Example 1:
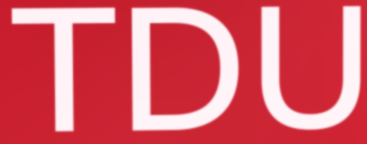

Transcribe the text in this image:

TDU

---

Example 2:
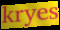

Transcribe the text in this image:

kryes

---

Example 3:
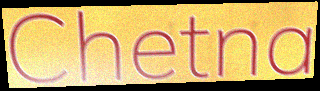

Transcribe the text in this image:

Chetna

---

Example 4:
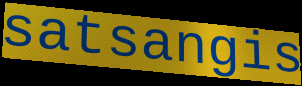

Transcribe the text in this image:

satsangis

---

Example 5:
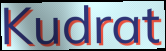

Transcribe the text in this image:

Kudrat